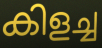
കിളച്ച